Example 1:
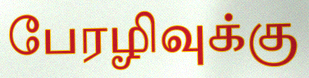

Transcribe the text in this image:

பேரழிவுக்கு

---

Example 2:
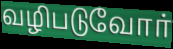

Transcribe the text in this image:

வழிபடுவோர்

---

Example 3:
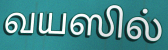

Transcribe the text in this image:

வயஸில்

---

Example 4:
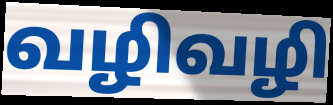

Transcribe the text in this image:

வழிவழி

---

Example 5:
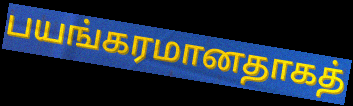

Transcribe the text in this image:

பயங்கரமானதாகத்